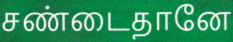
சண்டைதானே